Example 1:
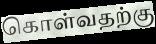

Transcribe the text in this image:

கொள்வதற்கு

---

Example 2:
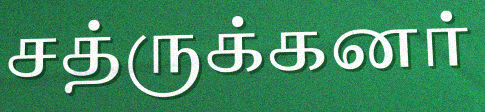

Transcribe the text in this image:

சத்ருக்கனர்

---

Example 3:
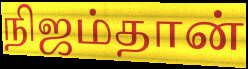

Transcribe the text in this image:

நிஜம்தான்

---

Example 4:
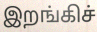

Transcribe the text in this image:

இறங்கிச்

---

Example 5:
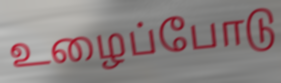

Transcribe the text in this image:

உழைப்போடு